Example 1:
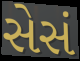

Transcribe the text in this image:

સેસં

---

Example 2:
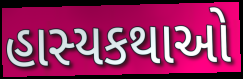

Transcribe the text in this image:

હાસ્યકથાઓ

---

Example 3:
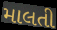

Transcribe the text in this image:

માલતી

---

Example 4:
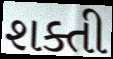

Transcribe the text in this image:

શક્તી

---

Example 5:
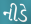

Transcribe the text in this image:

નીડે